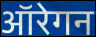
ऑरेगन